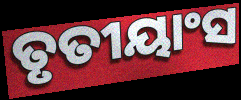
ତୃତୀୟାଂସ